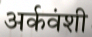
अर्कवंशी